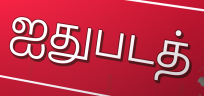
ஐதுபடத்